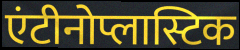
एंटीनोप्लास्टिक